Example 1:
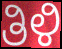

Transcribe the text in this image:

ತಿಳಿ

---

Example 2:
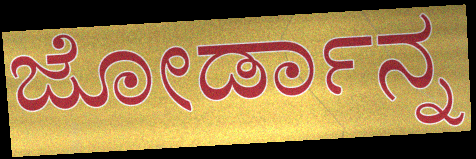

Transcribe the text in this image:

ಜೋರ್ಡಾನ್ನ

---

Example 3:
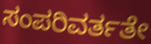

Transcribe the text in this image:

ಸಂಪರಿವರ್ತತೇ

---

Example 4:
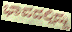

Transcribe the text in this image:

ಭಾವದಲ್ಲಿದ್ದು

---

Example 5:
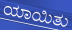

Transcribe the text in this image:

ಯಾಯಿತು